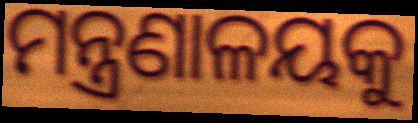
ମନ୍ତ୍ରଣାଳୟକୁ